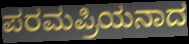
ಪರಮಪ್ರಿಯನಾದ